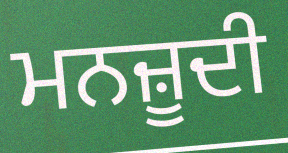
ਮਨਜ਼ੂਦੀ